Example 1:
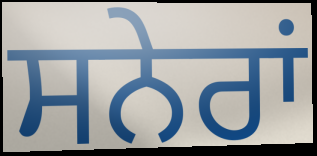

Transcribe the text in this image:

ਸਨੇਰਾਂ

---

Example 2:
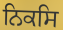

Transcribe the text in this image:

ਨਿਕਸਿ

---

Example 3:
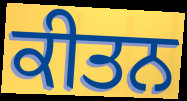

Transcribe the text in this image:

ਕੀਤਨ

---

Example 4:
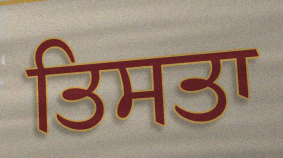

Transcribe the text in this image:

ਤਿਸਤਾ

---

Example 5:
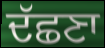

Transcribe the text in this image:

ਦੱਛਣਾ